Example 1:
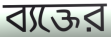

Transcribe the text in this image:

ব্যক্তের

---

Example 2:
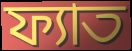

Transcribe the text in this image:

ফ্যাত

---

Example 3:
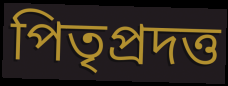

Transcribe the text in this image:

পিতৃপ্রদত্ত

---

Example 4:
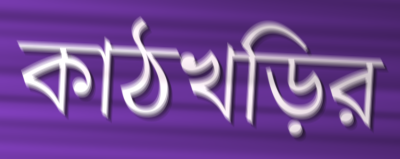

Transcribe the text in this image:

কাঠখড়ির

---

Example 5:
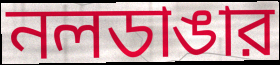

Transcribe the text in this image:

নলডাঙার